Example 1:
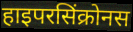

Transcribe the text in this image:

हाइपरसिंक्रोनस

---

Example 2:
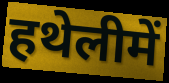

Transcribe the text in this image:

हथेलीमें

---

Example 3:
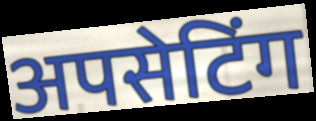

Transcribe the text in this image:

अपसेटिंग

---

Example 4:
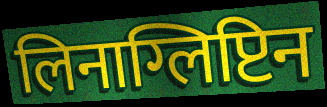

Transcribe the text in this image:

लिनाग्लिप्टिन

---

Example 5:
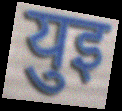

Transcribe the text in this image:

युइ